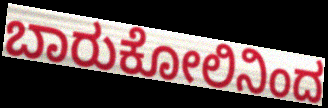
ಬಾರುಕೋಲಿನಿಂದ